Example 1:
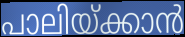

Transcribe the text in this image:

പാലിയ്ക്കാൻ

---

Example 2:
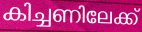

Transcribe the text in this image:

കിച്ചണിലേക്ക്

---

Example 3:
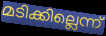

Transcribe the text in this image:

മടിക്കില്ലെന്ന്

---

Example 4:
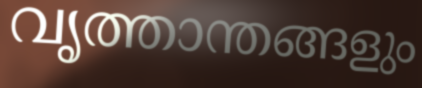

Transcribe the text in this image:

വൃത്താന്തങ്ങളും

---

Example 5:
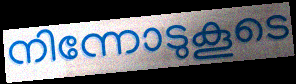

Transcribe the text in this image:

നിന്നോടുകൂടെ